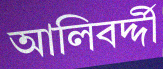
আলিবর্দ্দী